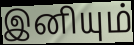
இனியும்